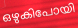
ഒഴുകിപോയി